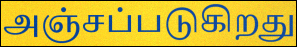
அஞ்சப்படுகிறது